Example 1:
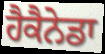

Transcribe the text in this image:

ਹੈਕੈਨੇਡਾ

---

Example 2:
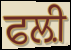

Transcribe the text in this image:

ਫਲ਼ੀ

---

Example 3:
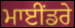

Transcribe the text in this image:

ਮਾਈਂਡਰੇ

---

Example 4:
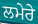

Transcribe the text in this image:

ਲਮੇਰੇ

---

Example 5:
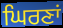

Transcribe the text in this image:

ਘਿਰਣਾਂ